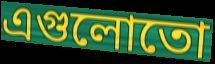
এগুলোতো